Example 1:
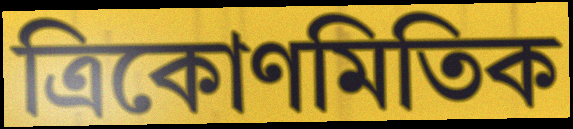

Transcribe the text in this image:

ত্ৰিকোণমিতিক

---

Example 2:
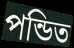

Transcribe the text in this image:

পন্ডিত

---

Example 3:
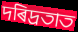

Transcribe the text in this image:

দৰিদ্ৰতাত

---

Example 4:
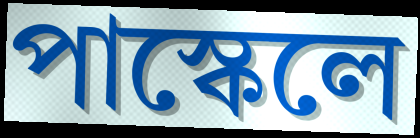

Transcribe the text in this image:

পাস্কেলে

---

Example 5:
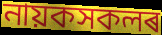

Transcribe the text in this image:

নায়কসকলৰ